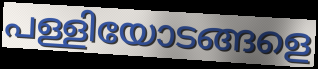
പള്ളിയോടങ്ങളെ